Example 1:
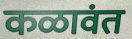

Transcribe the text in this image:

कळावंत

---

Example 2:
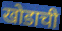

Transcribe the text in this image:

खोडाची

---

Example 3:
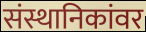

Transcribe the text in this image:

संस्थानिकांवर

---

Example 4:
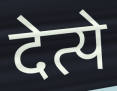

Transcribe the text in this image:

देत्ये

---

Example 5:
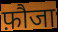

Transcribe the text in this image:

फ़ौजा